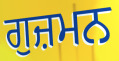
ਗੁਜ਼ਮਨ